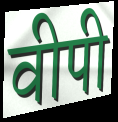
वीपी